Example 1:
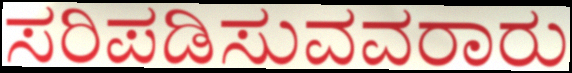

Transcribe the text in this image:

ಸರಿಪಡಿಸುವವರಾರು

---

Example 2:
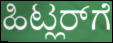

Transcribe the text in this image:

ಹಿಟ್ಲರ್‌ಗೆ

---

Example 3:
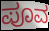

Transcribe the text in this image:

ಪೂವ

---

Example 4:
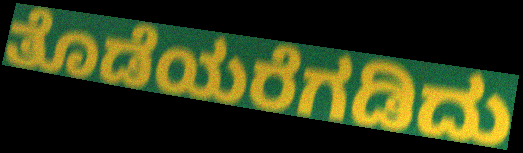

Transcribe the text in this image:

ತೊಡೆಯರೆಗಡಿದು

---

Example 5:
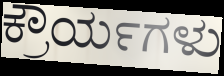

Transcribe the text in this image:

ಕ್ರೌರ್ಯಗಳು